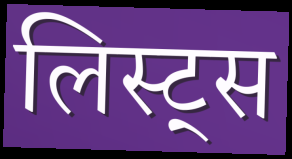
लिस्ट्स